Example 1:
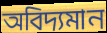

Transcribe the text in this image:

অবিদ্যমান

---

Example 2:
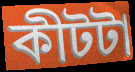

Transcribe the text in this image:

কীটটা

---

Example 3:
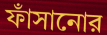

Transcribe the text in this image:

ফাঁসানোর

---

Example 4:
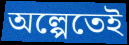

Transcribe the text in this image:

অল্পেতেই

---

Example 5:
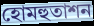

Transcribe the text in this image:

হোমহুতাশন